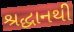
શ્રદ્ધાનથી